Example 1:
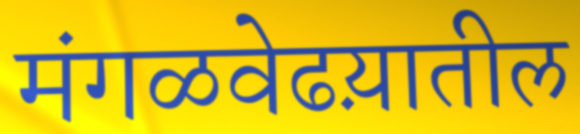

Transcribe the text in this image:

मंगळवेढय़ातील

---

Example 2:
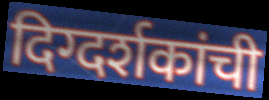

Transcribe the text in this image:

दिग्दर्शकांची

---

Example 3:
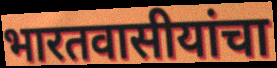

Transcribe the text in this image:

भारतवासीयांचा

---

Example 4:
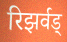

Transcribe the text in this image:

रिझर्वड्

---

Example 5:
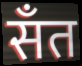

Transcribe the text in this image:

सँत